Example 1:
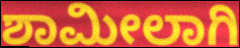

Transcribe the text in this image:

ಶಾಮೀಲಾಗಿ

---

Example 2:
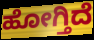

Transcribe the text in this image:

ಹೋಗ್ತಿದೆ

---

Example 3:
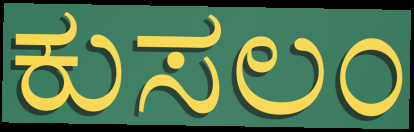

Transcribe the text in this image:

ಕುಸಲಂ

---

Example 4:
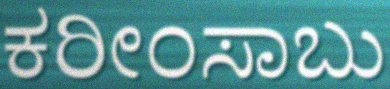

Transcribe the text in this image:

ಕರೀಂಸಾಬು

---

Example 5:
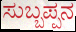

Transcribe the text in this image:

ಸುಬ್ಬಪ್ಪನ